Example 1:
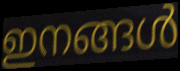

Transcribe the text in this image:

ഇനങ്ങൾ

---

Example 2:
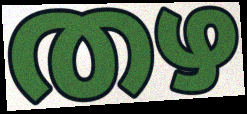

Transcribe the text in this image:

തഴ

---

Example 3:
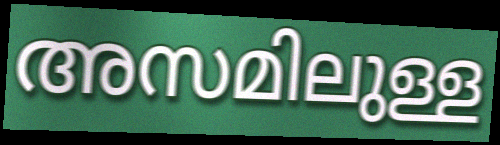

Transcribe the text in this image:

അസമിലുള്ള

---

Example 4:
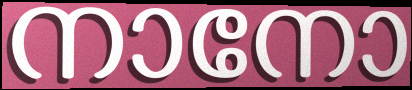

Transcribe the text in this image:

നാനോ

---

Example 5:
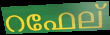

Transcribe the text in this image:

റഫേല്